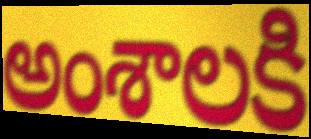
అంశాలకి